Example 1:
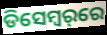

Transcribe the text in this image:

ଡିସେମ୍ବର୍‌ରେ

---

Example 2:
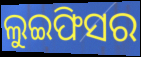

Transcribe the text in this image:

ଲୁଇଫିସର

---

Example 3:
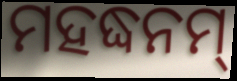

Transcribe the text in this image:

ମହଦ୍ଧନମ୍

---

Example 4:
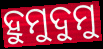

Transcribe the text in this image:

ହୁମୁଦୁମୁ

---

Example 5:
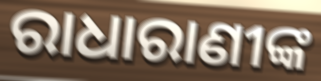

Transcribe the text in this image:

ରାଧାରାଣୀଙ୍କ